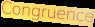
Congruence